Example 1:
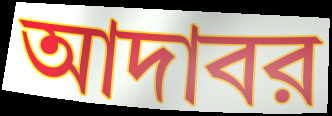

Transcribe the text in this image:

আদাবর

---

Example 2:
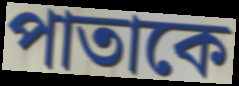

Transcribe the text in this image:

পাতাকে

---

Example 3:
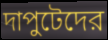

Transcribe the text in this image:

দাপুটেদের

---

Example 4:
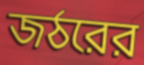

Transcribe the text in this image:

জঠরের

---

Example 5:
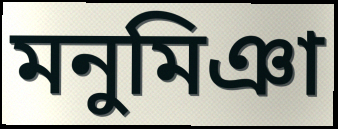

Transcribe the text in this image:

মনুমিঞা